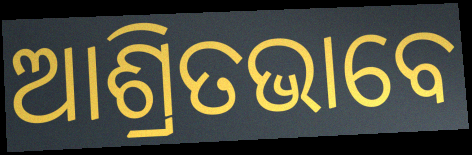
ଆଶ୍ରିତଭାବେ